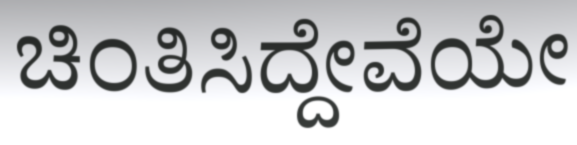
ಚಿಂತಿಸಿದ್ದೇವೆಯೇ